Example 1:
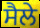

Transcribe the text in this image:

ਸੈਲੇ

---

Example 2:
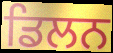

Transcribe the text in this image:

ਡਿਲਨ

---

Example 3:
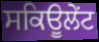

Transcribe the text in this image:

ਸਕਿਊਲੇਂਟ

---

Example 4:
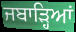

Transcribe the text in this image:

ਜਬਾੜ੍ਹਿਆਂ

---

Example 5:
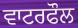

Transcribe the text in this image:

ਵਾਟਰਫੌਲ